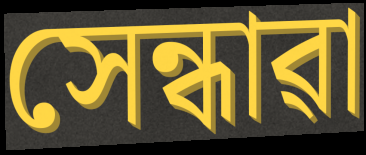
সেন্ধাৱা